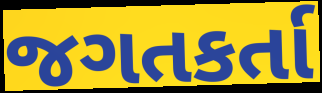
જગતકર્તા